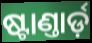
ଷ୍ଟାଣ୍ତାର୍ଡ଼